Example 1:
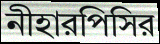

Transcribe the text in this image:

নীহারপিসির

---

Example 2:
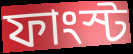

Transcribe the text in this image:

ফাংস্ট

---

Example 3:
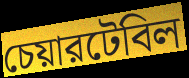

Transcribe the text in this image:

চেয়ারটেবিল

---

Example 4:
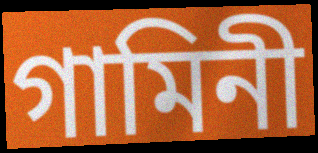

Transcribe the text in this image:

গামিনী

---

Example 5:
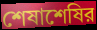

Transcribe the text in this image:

শেষাশেষির